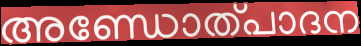
അണ്ഡോത്പാദന